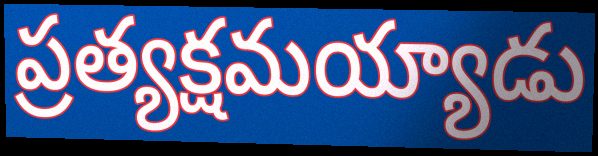
ప్రత్యక్షమయ్యాడు